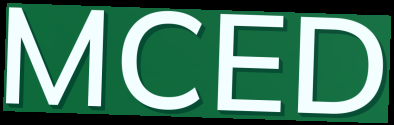
MCED